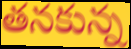
తనకున్న